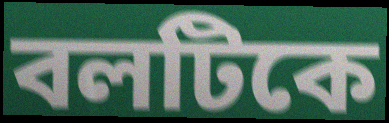
বলটিকে